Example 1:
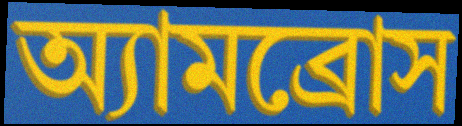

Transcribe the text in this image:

অ্যামব্রোস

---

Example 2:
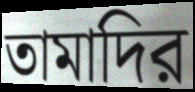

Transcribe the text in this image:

তামাদির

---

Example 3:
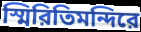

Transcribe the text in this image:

স্মিরিতিমন্দিরে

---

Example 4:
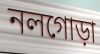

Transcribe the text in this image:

নলগোড়া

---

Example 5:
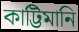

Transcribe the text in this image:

কাট্টিমানি